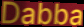
Dabba